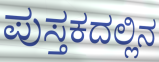
ಪುಸ್ತಕದಲ್ಲಿನ